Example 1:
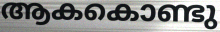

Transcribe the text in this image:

ആകകൊണ്ടു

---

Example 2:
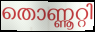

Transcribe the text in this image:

തൊണ്ണൂറ്റി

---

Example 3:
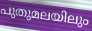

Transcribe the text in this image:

പുതുമലയിലും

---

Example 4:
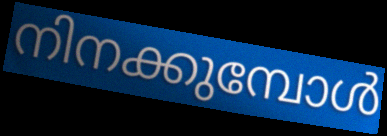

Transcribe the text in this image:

നിനക്കുമ്പോൾ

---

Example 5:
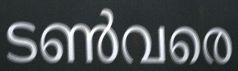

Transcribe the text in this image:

ടൺവരെ